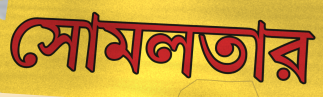
সোমলতার